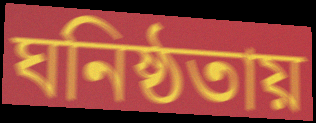
ঘনিষ্ঠতায়